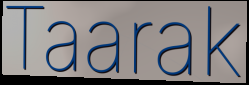
Taarak